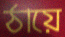
ঠায়ে